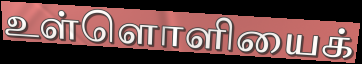
உள்ளொளியைக்